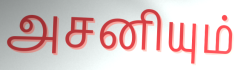
அசனியும்